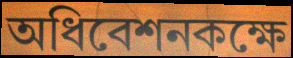
অধিবেশনকক্ষে